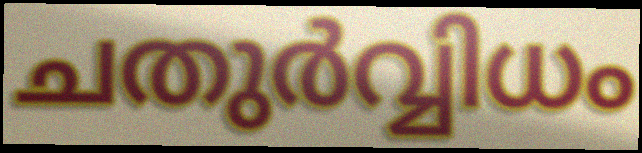
ചതുർവ്വിധം